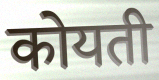
कोयती